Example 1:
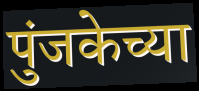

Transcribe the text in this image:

पुंजकेच्या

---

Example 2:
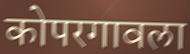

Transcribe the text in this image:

कोपरगावला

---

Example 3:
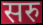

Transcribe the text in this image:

सरु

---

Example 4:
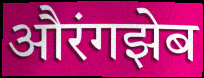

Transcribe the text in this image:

औरंगझेब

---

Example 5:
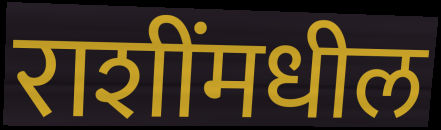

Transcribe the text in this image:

राशींमधील